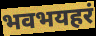
भवभयहरं